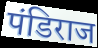
पंडिराज